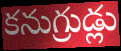
కనుగ్రుడ్లు